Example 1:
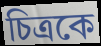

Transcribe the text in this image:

চিত্ৰকে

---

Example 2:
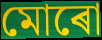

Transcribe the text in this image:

মোৰো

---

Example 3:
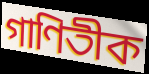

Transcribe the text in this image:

গাণিতীক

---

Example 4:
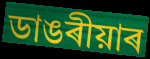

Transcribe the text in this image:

ডাঙৰীয়াৰ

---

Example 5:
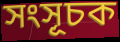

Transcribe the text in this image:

সংসূচক